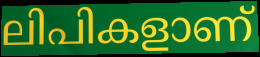
ലിപികളാണ്